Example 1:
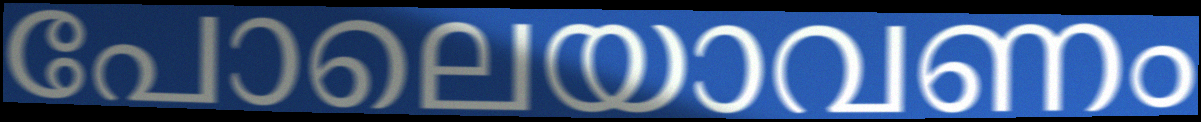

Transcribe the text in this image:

പോലെയാവണം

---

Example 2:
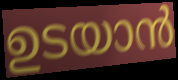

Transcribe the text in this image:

ഉടയാൻ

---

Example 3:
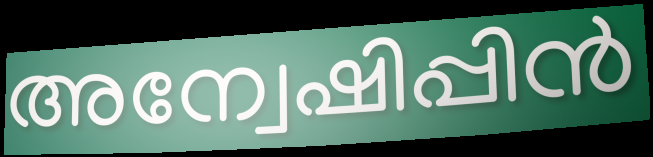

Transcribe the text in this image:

അന്വേഷിപ്പിൻ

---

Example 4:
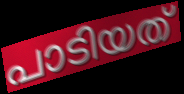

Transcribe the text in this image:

പാടിയത്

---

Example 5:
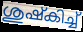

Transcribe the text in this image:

ശുഷ്കിച്ച്